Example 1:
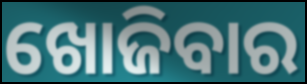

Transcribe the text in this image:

ଖୋଜିବାର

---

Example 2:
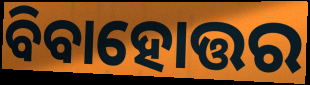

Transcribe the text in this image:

ବିବାହୋତ୍ତର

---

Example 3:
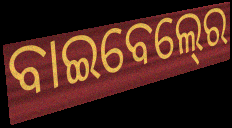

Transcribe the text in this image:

ବାଇବେଲ୍‍ରେ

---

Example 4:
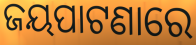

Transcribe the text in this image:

ଜୟପାଟଣାରେ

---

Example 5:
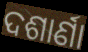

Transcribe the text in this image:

ଦଶାର୍ଣା